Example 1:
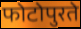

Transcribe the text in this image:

फोटोपुरते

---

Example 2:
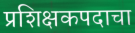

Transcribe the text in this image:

प्रशिक्षकपदाचा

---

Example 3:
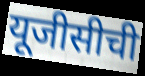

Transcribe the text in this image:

यूजीसीची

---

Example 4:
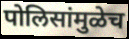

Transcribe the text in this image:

पोलिसांमुळेच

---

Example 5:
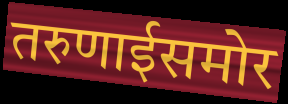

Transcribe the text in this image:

तरुणाईसमोर